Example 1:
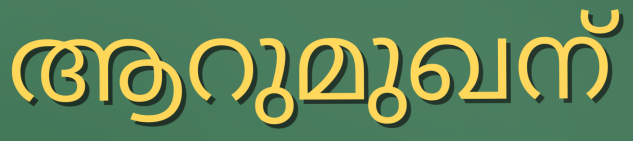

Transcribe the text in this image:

ആറുമുഖന്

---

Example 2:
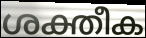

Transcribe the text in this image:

ശക്തീക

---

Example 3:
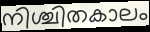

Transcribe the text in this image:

നിശ്ചിതകാലം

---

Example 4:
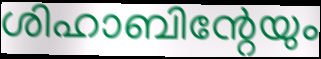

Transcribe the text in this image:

ശിഹാബിന്റേയും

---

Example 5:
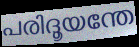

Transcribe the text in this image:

പരിദൂയന്തേ